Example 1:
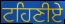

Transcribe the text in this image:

ਟਹਿਣੀਏ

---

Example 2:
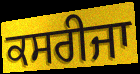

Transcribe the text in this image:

ਕਸਰੀਜਾ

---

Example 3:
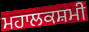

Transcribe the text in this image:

ਮਹਾਲਕਸ਼ਮੀ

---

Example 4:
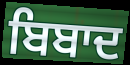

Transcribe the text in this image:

ਬਿਬਾਦ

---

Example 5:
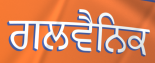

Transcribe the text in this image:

ਗਲਵੈਨਿਕ